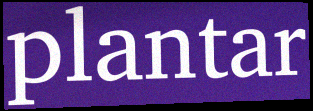
plantar